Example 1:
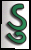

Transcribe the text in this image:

ડુ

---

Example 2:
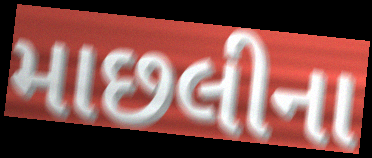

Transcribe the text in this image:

માછલીના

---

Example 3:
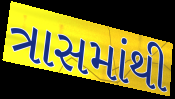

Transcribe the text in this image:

ત્રાસમાંથી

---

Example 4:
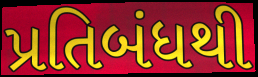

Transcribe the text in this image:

પ્રતિબંધથી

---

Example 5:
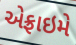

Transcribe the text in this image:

એફ્રાઇમે